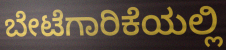
ಬೇಟೆಗಾರಿಕೆಯಲ್ಲಿ